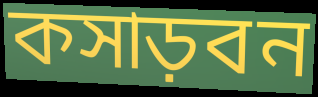
কসাড়বন